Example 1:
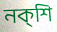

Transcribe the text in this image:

নক্‌শি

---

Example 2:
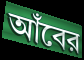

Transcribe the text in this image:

আঁবের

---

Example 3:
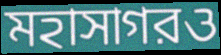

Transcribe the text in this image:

মহাসাগরও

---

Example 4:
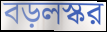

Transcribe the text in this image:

বড়লস্কর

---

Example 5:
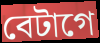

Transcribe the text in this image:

বেটাগে